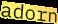
adorn